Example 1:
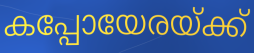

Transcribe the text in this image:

കപ്പോയേരയ്ക്ക്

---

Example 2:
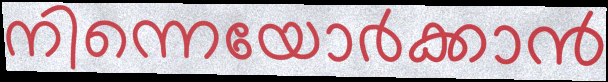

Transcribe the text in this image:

നിന്നെയോർക്കാൻ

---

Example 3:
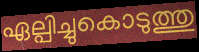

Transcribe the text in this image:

ഏല്പിച്ചുകൊടുത്തു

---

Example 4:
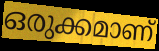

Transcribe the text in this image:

ഒരുക്കമാണ്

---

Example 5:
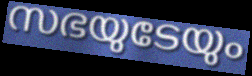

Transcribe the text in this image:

സഭയുടേയും